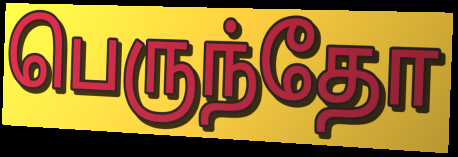
பெருந்தோ